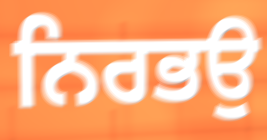
ਨਿਰਭਉ